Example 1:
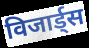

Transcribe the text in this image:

विजार्ड्स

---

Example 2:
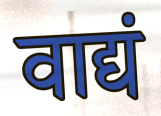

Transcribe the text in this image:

वाद्यं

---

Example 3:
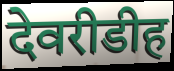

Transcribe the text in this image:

देवरीडीह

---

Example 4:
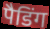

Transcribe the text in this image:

पैडिंग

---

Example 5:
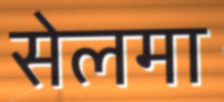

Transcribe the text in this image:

सेलमा